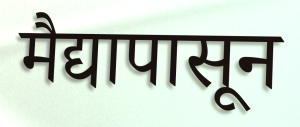
मैद्यापासून